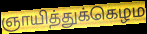
ஞாயித்துக்கெழம